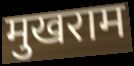
मुखराम